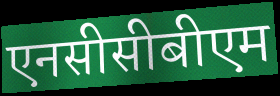
एनसीसीबीएम